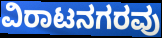
ವಿರಾಟನಗರವು